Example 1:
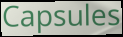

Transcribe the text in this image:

Capsules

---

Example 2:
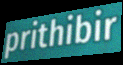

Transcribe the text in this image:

prithibir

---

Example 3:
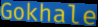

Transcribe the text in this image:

Gokhale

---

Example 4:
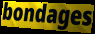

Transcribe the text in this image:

bondages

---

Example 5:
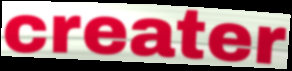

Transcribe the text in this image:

creater